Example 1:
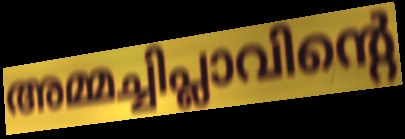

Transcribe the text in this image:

അമ്മച്ചിപ്ലാവിന്റെ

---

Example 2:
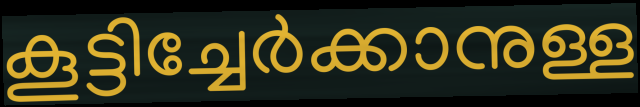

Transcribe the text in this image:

കൂട്ടിച്ചേർക്കാനുള്ള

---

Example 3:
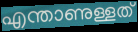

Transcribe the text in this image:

എന്താണുള്ളത്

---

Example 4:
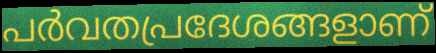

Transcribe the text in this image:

പർവതപ്രദേശങ്ങളാണ്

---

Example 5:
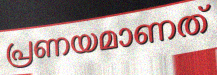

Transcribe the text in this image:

പ്രണയമാണത്